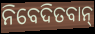
ନିବେଦିତବାନ୍